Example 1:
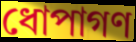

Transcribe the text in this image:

ধোপাগণ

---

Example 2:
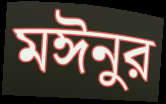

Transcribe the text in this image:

মঈনুর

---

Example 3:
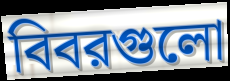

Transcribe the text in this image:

বিবরগুলো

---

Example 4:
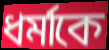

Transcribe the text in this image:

ধর্মাকে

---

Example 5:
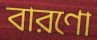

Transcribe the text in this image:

বারণো